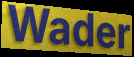
Wader